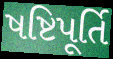
ષષ્ટિપૂર્તિ